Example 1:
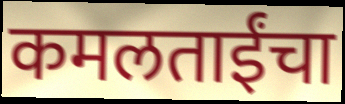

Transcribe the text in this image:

कमलताईंचा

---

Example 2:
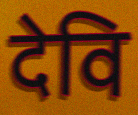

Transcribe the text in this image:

देवि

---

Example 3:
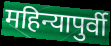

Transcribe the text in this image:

महिन्यापुर्वी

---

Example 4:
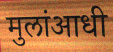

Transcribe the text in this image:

मुलांआधी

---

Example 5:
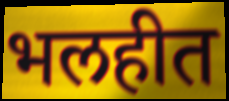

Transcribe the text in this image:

भलहीत